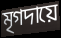
মৃগদায়ে